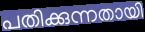
പതിക്കുന്നതായി